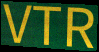
VTR